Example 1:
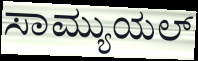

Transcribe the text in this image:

ಸಾಮ್ಯುಯಲ್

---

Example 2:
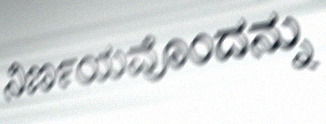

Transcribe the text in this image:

ನಿರ್ಣಯವೊಂದನ್ನು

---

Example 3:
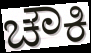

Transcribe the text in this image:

ಚೌಕಿ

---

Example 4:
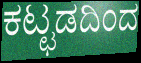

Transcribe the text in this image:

ಕಟ್ಟಡದಿಂದ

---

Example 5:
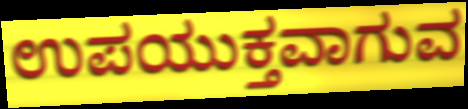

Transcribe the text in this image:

ಉಪಯುಕ್ತವಾಗುವ